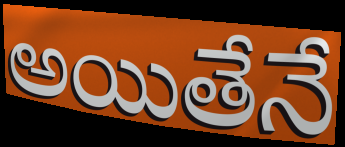
అయితేనే